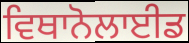
ਵਿਥਾਨੋਲਾਈਡ